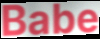
Babe